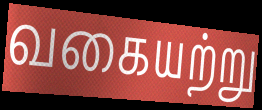
வகையற்று